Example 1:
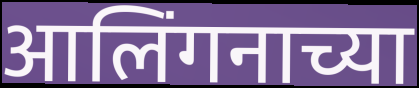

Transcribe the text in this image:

आलिंगनाच्या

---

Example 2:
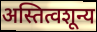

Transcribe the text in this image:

अस्तित्वशून्य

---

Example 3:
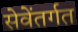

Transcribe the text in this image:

सेवेंतर्गत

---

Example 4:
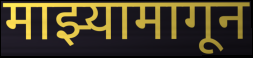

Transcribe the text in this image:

माझ्यामागून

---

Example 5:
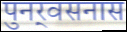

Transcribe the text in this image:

पुनर्वसनास